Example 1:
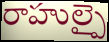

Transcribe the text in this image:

రాహుల్పై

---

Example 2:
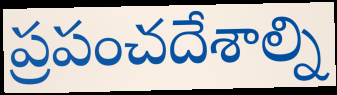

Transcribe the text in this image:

ప్రపంచదేశాల్ని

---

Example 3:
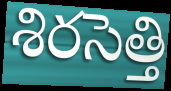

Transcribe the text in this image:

శిరసెత్తి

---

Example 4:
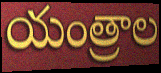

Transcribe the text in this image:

యంత్రాల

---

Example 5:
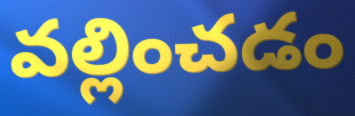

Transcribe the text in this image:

వల్లించడం